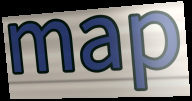
map